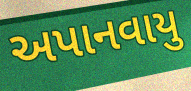
અપાનવાયુ